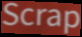
Scrap